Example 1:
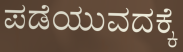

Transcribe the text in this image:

ಪಡೆಯುವದಕ್ಕೆ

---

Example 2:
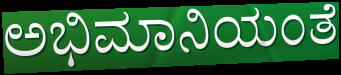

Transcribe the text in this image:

ಅಭಿಮಾನಿಯಂತೆ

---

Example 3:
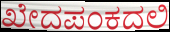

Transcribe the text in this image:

ಖೇದಪಂಕದಲಿ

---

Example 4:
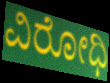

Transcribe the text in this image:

ವಿರೋಧಿ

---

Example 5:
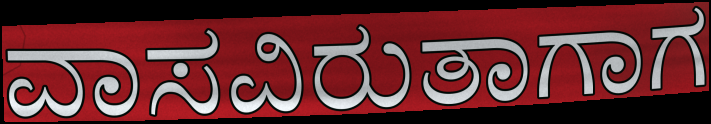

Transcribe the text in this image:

ವಾಸವಿರುತಾಗಾಗ